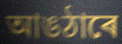
আঙঠাৰে